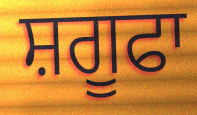
ਸ਼ਗੂਫਾ